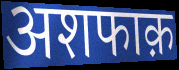
अशफाक़